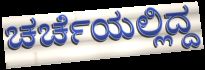
ಚರ್ಚೆಯಲ್ಲಿದ್ದ